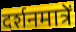
दर्शनमात्रें